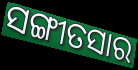
ସଙ୍ଗୀତସାର